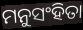
ମନୁସଂହିତା